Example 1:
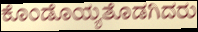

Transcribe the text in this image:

ಕೊಂಡೊಯ್ಯತೊಡಗಿದರು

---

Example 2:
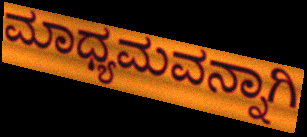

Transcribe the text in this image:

ಮಾಧ್ಯಮವನ್ನಾಗಿ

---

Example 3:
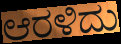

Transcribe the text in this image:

ಆರಳಿದು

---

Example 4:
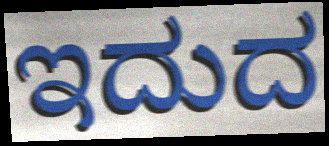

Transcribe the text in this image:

ಇದುದ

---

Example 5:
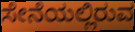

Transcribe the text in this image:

ಸೇನೆಯಲ್ಲಿರುವ